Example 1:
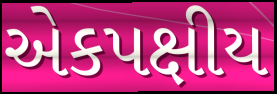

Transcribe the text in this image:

એકપક્ષીય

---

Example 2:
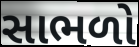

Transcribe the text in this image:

સાભળો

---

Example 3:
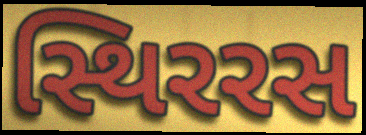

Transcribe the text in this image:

સ્થિરરસ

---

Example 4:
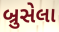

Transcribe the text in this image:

બ્રુસેલા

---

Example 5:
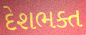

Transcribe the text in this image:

દેશભક્ત